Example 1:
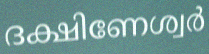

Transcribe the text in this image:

ദക്ഷിണേശ്വർ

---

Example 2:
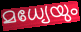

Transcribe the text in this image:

മധ്യേയും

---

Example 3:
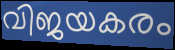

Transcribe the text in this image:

വിജയകരം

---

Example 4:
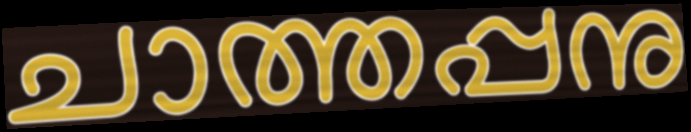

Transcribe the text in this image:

ചാത്തപ്പനു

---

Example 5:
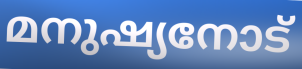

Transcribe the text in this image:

മനുഷ്യനോട്